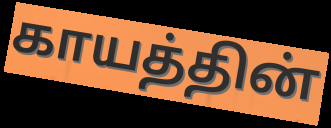
காயத்தின்